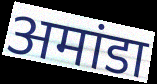
अमांडा